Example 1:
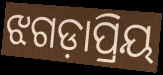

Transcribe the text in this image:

ଝଗଡ଼ାପ୍ରିୟ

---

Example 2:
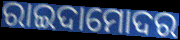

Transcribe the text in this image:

ରାଇଦାମୋଦର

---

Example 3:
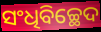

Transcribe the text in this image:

ସଂଧିବିଚ୍ଛେଦ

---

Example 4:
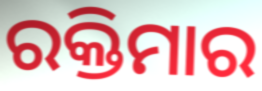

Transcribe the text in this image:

ରକ୍ତିମାର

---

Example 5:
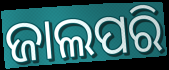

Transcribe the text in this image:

ଜାଲପରି